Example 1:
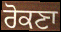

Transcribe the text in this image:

ਰੋਕਣਾ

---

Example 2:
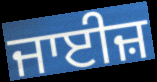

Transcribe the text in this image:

ਜਾਈਜ਼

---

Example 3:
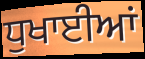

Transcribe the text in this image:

ਧੁਖਾਈਆਂ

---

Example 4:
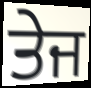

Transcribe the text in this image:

ਤੇਜ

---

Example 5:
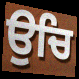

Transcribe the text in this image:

ਉਚਿ